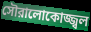
সৌরালোকোজ্জ্বল